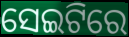
ସେଇଟିରେ